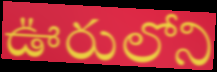
ఊరులోని